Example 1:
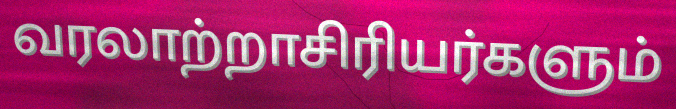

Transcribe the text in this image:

வரலாற்றாசிரியர்களும்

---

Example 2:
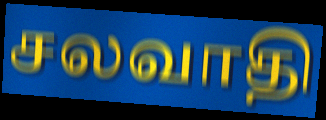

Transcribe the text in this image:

சலவாதி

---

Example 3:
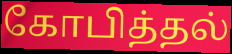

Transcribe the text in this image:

கோபித்தல்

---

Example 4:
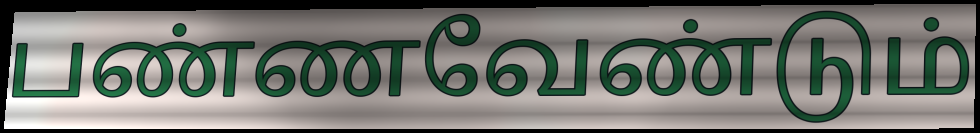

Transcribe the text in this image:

பண்ணவேண்டும்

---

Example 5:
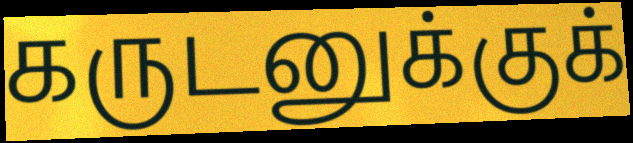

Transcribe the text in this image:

கருடனுக்குக்